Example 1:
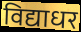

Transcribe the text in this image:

विद्याधर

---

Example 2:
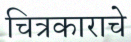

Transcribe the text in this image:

चित्रकाराचे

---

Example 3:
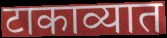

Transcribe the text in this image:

टाकाव्यात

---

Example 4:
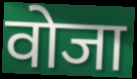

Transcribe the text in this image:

वोजा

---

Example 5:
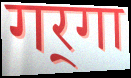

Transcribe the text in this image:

गर्गा